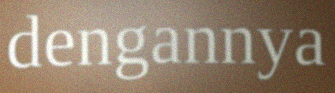
dengannya